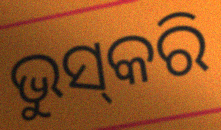
ଭୁସ୍‌କରି